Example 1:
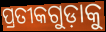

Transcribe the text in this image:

ପ୍ରତୀକଗୁଡ଼ାକୁ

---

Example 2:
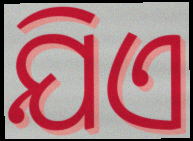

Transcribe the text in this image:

ଯିଏ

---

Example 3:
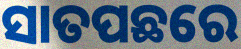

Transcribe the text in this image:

ସାତପଛରେ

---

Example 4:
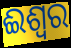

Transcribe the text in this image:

ଈଶ୍ବର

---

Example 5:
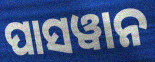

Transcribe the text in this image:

ପାସୱାନ